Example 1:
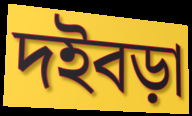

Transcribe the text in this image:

দইবড়া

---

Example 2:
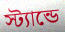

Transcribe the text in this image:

স্ট্যান্ডে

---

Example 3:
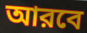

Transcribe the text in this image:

আরবে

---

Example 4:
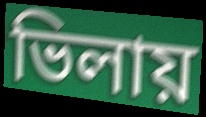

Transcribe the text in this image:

ভিলায়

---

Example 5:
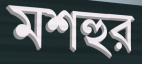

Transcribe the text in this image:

মশহুর